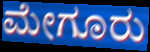
ಮೇಗೂರು